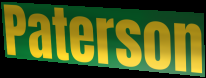
Paterson